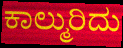
ಕಾಲ್ಮುರಿದು